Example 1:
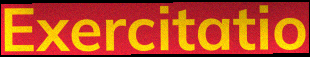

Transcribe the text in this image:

Exercitatio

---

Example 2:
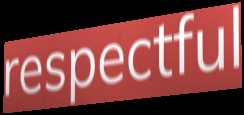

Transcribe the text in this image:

respectful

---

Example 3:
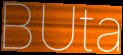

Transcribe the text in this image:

BUta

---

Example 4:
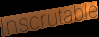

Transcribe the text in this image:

Inscrutable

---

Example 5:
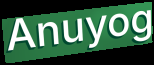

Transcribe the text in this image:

Anuyog